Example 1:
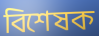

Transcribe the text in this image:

বিশেষক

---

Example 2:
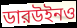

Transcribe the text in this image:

ডারউইনও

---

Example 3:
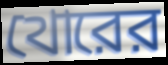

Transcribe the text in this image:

থোরের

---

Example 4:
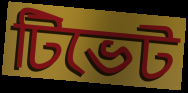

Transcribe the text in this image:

টিভেট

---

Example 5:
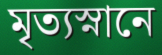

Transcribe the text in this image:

মৃত্যস্নানে